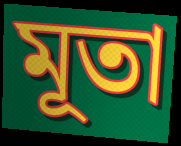
মূতা